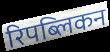
रिपब्लिकन